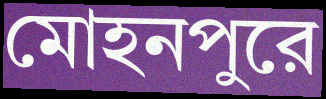
মোহনপুরে